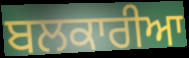
ਬਲਕਾਰੀਆ